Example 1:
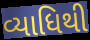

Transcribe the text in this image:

વ્યાધિથી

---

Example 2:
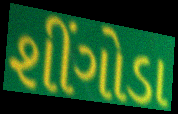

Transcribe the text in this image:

શીંગોડા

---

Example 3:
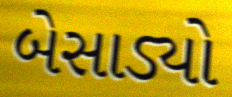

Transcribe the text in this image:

બેસાડ્યો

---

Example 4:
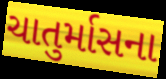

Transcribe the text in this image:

ચાતુર્માસના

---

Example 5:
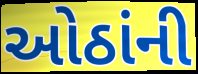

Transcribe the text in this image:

ઓઠાંની